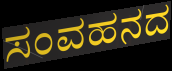
ಸಂವಹನದ